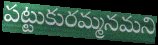
పట్టుకురమ్మనమని